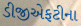
ડીજીએફટીના